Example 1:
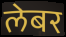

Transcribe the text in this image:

लेबर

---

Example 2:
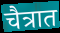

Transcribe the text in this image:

चैत्रात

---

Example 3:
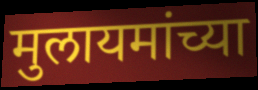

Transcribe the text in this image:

मुलायमांच्या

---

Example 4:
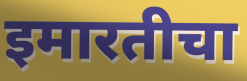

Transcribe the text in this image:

इमारतीचा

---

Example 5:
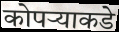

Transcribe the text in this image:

कोपऱ्याकडे